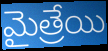
మైత్రేయి